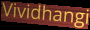
Vividhangi